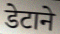
डेटाने